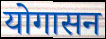
योगासन